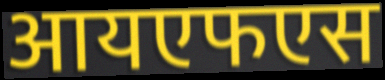
आयएफएस